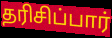
தரிசிப்பார்